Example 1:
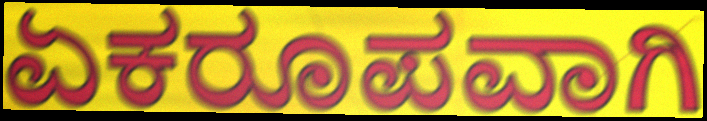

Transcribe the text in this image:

ಏಕರೂಪವಾಗಿ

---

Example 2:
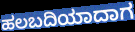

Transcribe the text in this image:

ಹಲಬದಿಯಾದಾಗ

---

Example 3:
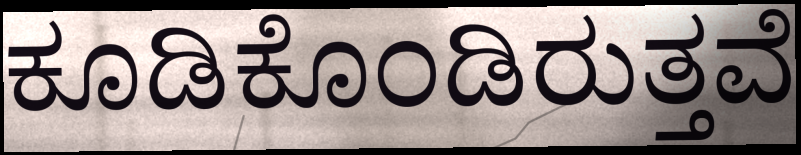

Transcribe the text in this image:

ಕೂಡಿಕೊಂಡಿರುತ್ತವೆ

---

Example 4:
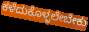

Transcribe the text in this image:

ಕಳೆದುಕೊಳ್ಳಲೇಬೇಕು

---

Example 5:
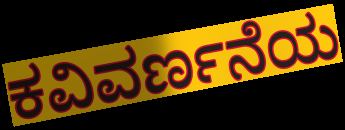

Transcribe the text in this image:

ಕವಿವರ್ಣನೆಯ